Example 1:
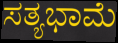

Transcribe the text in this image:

ಸತ್ಯಭಾಮೆ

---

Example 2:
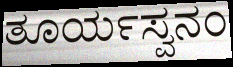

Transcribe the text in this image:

ತೂರ್ಯಸ್ವನಂ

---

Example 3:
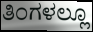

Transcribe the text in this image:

ತಿಂಗಳಲ್ಲೂ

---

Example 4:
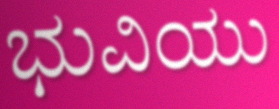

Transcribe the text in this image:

ಭುವಿಯು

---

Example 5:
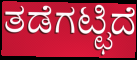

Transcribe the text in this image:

ತಡೆಗಟ್ಟಿದೆ